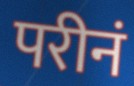
परीनं